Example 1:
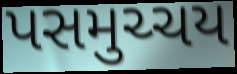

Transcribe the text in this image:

પસમુચ્ચય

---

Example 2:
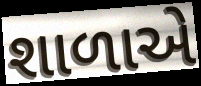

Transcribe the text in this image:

શાળાએે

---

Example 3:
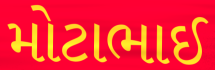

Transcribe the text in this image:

મોટાભાઈ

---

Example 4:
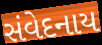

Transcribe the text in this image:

સંવેદનાય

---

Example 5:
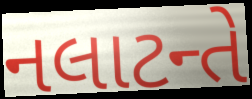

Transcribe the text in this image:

નલાટન્તે